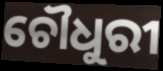
ଚୌଧୁରୀ